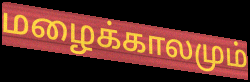
மழைக்காலமும்